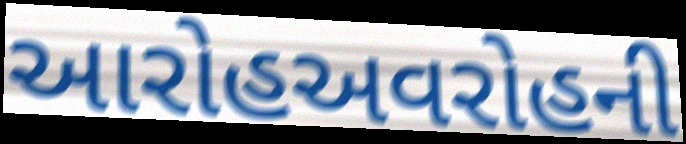
આરોહઅવરોહની